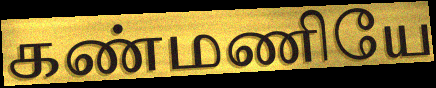
கண்மணியே